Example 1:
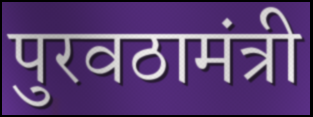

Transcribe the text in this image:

पुरवठामंत्री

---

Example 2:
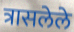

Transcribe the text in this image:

त्रासलेले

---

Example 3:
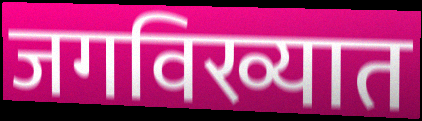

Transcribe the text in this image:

जगविख्यात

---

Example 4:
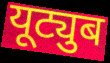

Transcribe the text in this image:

यूट्युब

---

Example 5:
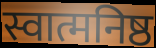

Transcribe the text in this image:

स्वात्मनिष्ठ